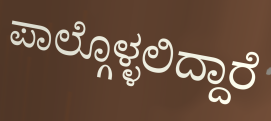
ಪಾಲ್ಗೊಳ್ಳಲಿದ್ದಾರೆ